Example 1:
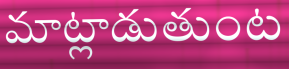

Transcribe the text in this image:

మాట్లాడుతుంట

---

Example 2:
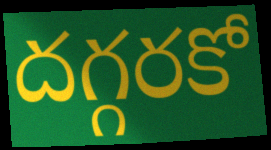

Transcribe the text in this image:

దగ్గరకో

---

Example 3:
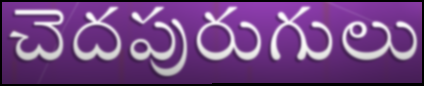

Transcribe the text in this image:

చెదపురుగులు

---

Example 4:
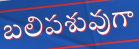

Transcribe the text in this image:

బలిపశువుగా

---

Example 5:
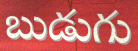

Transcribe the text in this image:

బుడుగు